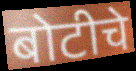
बोटीचे